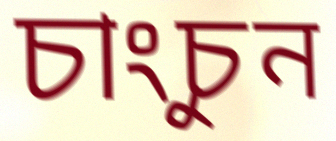
চাংচুন